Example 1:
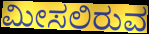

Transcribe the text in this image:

ಮೀಸಲಿರುವ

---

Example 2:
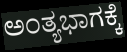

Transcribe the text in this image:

ಅಂತ್ಯಭಾಗಕ್ಕೆ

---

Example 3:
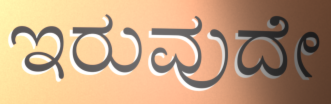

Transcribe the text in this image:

ಇರುವುದೇ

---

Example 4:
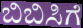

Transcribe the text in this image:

ಬಿಬಿಸಿಗೆ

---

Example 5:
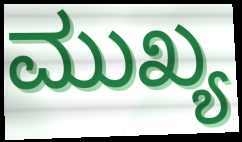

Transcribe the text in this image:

ಮುಖ್ಯ